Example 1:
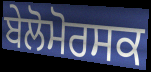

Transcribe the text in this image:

ਬੇਲੋਮੋਰਸਕ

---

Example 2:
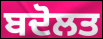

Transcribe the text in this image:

ਬਦੋਲਤ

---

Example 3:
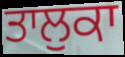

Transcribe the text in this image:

ਤਾਲੁਕਾ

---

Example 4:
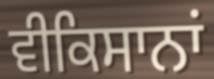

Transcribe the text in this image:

ਵੀਕਿਸਾਨਾਂ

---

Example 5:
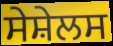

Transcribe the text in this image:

ਸੇਸ਼ੇਲਸ